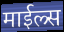
माईल्स